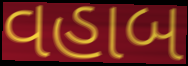
વહાબ